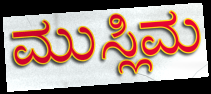
ಮುಸ್ಲಿಮ